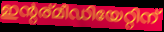
ഇന്റര്മീഡിയേറ്റിന്